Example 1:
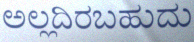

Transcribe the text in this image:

ಅಲ್ಲದಿರಬಹುದು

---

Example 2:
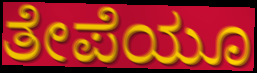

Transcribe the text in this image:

ತೇಪೆಯೂ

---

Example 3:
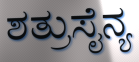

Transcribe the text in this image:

ಶತ್ರುಸೈನ್ಯ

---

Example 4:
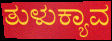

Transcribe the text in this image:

ತುಳುಕ್ಯಾವ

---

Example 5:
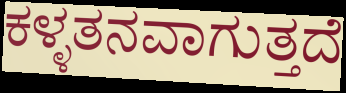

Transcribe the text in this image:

ಕಳ್ಳತನವಾಗುತ್ತದೆ